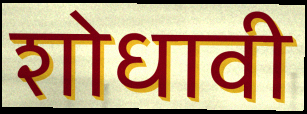
शोधावी